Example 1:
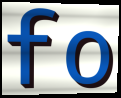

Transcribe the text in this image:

fo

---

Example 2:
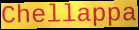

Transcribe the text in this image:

Chellappa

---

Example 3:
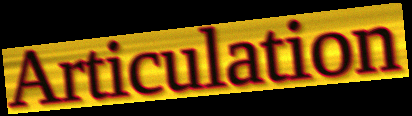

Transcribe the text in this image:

Articulation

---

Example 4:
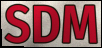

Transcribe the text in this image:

SDM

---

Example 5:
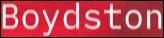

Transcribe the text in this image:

Boydston